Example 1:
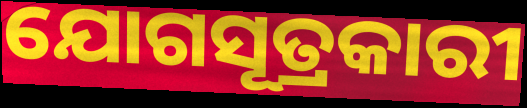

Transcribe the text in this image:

ଯୋଗସୂତ୍ରକାରୀ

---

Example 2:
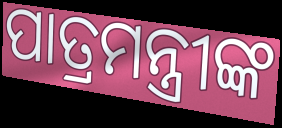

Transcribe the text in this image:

ପାତ୍ରମନ୍ତ୍ରୀଙ୍କ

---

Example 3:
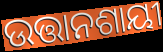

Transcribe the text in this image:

ଉତ୍ତାନଶାୟୀ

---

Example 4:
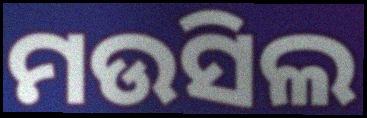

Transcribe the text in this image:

ମଉସିଲ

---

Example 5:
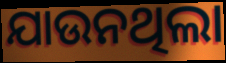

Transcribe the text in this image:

ଯାଉନଥିଲା